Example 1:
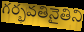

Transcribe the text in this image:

గర్భవతినైతిని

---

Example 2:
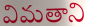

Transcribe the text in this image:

విమతాని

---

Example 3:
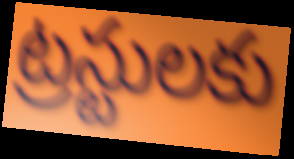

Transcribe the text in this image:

ట్రస్టులకు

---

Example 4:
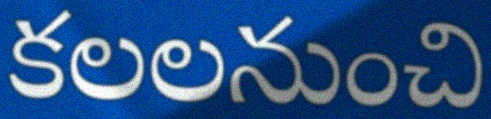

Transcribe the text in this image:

కలలనుంచి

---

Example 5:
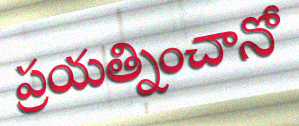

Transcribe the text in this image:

ప్రయత్నించానో